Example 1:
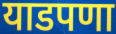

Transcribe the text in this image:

याडपणा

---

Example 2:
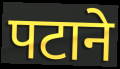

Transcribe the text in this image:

पटाने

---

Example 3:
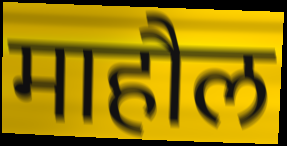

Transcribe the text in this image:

माहौल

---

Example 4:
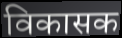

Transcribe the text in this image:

विकासक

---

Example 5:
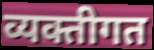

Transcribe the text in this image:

व्यक्तीगत